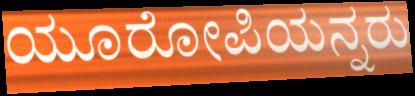
ಯೂರೋಪಿಯನ್ನರು